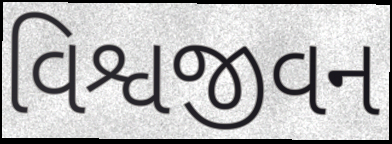
વિશ્વજીવન